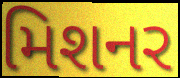
મિશનર